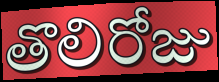
తొలిరోజు